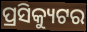
ପ୍ରସିକ୍ୟୁଟର